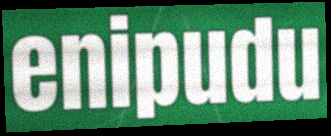
enipudu